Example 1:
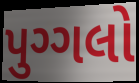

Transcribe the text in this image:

પુગ્ગલો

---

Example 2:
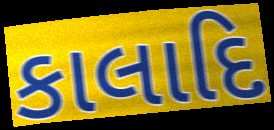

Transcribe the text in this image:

કાલાદિ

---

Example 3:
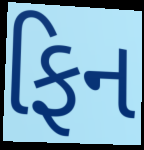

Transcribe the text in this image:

ફિન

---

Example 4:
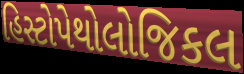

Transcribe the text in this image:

હિસ્ટોપેથોલોજિકલ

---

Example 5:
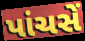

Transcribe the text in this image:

પાંચસેં